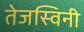
तेजस्विनी